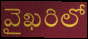
వైఖరిలో